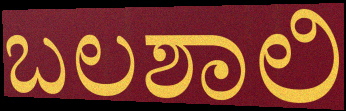
ಬಲಶಾಲಿ